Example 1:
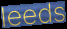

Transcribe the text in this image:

leeds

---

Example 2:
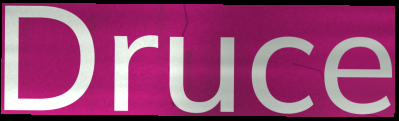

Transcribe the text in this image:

Druce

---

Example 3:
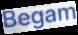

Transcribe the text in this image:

Begam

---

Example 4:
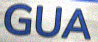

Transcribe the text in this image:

GUA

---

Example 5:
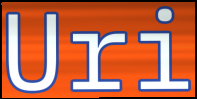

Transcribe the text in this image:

Uri